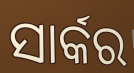
ସାର୍କର